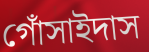
গোঁসাইদাস